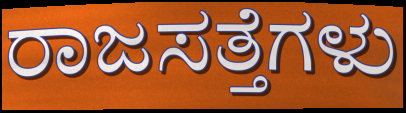
ರಾಜಸತ್ತೆಗಳು